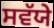
ਸਵੱਯੇ